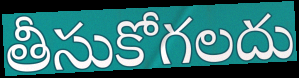
తీసుకోగలదు